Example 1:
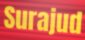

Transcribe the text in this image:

Surajud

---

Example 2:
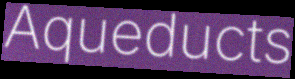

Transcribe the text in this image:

Aqueducts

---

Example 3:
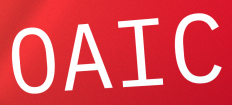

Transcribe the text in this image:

OAIC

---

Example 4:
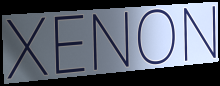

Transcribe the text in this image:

XENON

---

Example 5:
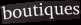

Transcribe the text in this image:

boutiques